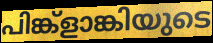
പിങ്ക്ളാങ്കിയുടെ